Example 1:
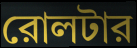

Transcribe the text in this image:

রোলটার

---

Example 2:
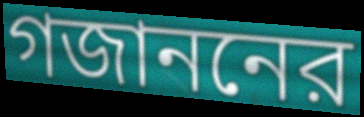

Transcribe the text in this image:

গজাননের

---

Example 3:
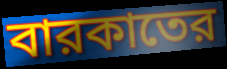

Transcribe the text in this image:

বারকাতের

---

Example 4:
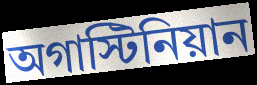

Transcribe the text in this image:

অগাস্টিনিয়ান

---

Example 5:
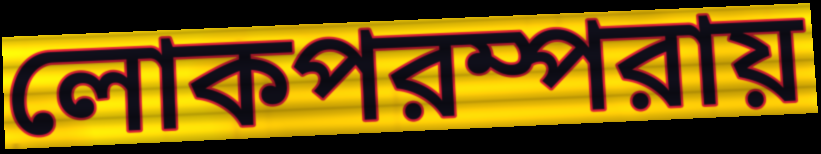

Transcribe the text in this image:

লোকপরম্পরায়